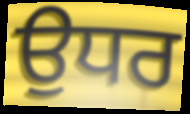
ਉਧਰ